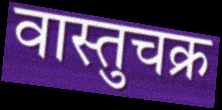
वास्तुचक्र